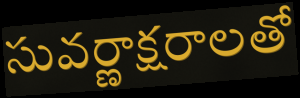
సువర్ణాక్షరాలతో